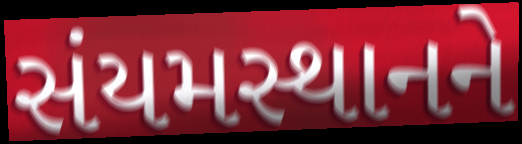
સંયમસ્થાનને